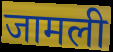
जामली